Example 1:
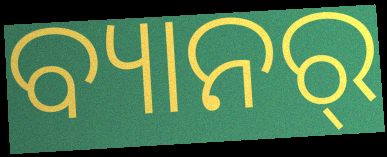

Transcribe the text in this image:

ବ୍ୟାନର୍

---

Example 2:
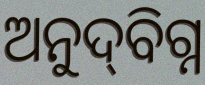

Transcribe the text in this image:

ଅନୁଦ୍‌ବିଗ୍ନ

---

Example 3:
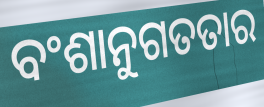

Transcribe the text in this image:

ବଂଶାନୁଗତତାର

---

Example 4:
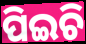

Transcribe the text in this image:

ପିଇଚି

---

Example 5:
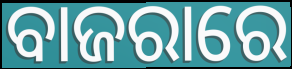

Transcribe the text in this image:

ବାଜରାରେ